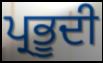
ਪ੍ਰਭੂਦੀ